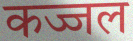
कज्जल